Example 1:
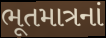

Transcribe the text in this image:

ભૂતમાત્રનાં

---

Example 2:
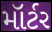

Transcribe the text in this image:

મૉર્ટર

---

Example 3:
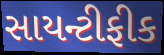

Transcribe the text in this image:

સાયન્ટીફીક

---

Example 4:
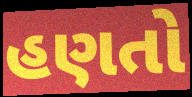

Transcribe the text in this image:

હણતો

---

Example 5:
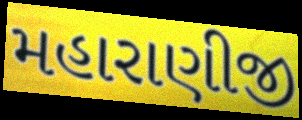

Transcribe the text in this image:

મહારાણીજી